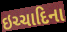
ઇચ્ચાદિના